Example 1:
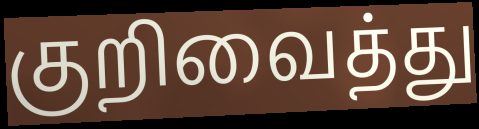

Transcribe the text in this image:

குறிவைத்து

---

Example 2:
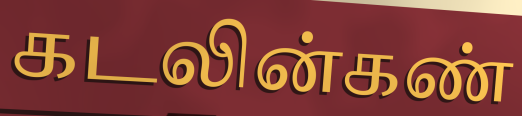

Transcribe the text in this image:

கடலின்கண்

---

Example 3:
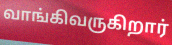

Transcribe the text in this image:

வாங்கிவருகிறார்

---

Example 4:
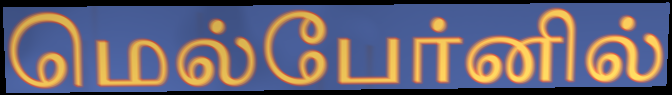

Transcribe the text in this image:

மெல்பேர்னில்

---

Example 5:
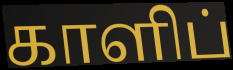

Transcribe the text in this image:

காளிப்